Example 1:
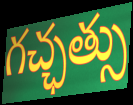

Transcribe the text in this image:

గచ్ఛత్సు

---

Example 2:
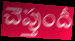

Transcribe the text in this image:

చెప్తుందీ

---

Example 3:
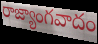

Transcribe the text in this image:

రాజ్యాంగవాదం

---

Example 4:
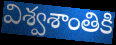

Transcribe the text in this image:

విశ్వశాంతికి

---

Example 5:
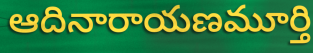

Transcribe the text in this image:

ఆదినారాయణమూర్తి